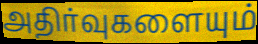
அதிர்வுகளையும்